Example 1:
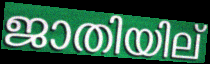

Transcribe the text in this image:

ജാതിയില്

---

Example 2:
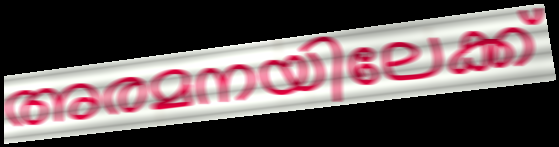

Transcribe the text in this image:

അരമനയിലേക്ക്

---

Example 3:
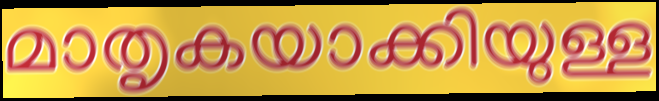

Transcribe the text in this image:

മാതൃകയാക്കിയുള്ള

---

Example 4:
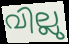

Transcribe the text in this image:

വില്ലു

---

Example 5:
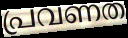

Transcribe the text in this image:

പ്രവണത